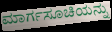
ಮಾರ್ಗಸೂಚಿಯನ್ನು